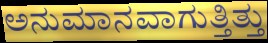
ಅನುಮಾನವಾಗುತ್ತಿತ್ತು